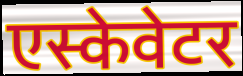
एस्केवेटर